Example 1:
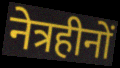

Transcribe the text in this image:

नेत्रहीनों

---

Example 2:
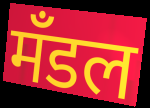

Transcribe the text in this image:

मँडल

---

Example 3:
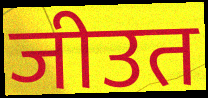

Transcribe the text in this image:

जीउत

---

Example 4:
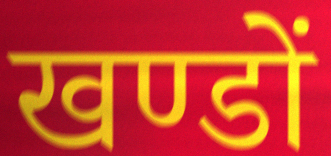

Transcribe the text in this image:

खण्डों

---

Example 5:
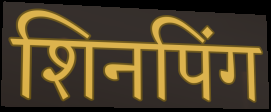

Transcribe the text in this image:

शिनपिंग